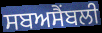
ਸਬਅਸੈਂਬਲੀ